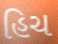
હિચ